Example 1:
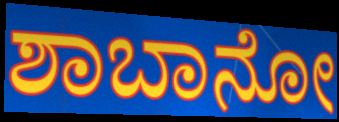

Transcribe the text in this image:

ಶಾಬಾನೋ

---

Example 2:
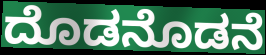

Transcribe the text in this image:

ದೊಡನೊಡನೆ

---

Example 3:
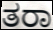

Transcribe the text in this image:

ತರಾ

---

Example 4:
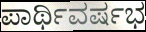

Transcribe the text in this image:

ಪಾರ್ಥಿವರ್ಷಭ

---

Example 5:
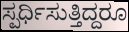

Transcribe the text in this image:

ಸ್ಪರ್ಧಿಸುತ್ತಿದ್ದರೂ